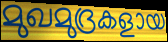
മുഖമുദ്രകളായ